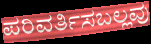
ಪರಿವರ್ತಿಸಬಲ್ಲವು